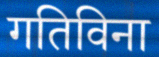
गतिविना